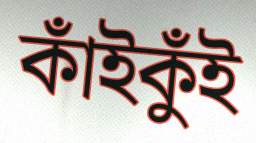
কাঁইকুঁই